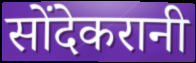
सोंदेकरानी